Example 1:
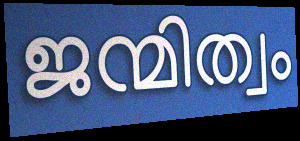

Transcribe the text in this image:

ജന്മിത്വം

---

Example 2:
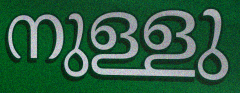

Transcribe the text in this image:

നുള്ളു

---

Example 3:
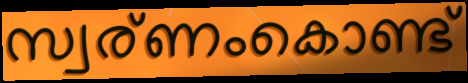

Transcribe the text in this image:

സ്വര്ണംകൊണ്ട്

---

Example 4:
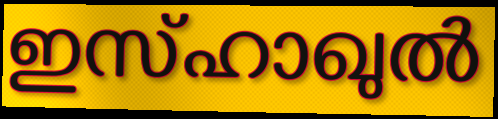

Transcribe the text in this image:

ഇസ്ഹാഖുൽ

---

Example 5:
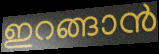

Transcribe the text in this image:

ഇറങ്ങാൻ